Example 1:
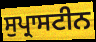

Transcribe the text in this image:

ਸੁਪ੍ਰਾਸਟੀਨ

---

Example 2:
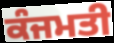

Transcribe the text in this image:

ਕੰਜਮਤੀ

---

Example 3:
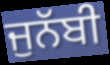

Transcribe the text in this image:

ਜੁਨੱਬੀ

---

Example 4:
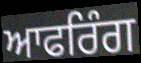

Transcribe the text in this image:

ਆਫਰਿੰਗ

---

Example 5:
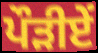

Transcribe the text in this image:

ਪੌੜੀਏਂ